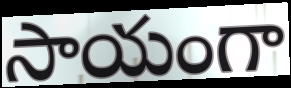
సాయంగా